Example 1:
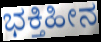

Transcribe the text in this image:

ಭಕ್ತಿಹೀನ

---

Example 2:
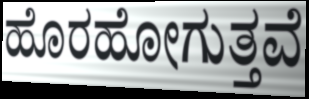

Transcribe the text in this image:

ಹೊರಹೋಗುತ್ತವೆ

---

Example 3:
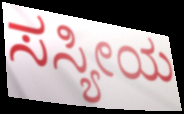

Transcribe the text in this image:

ಸಸ್ಯೀಯ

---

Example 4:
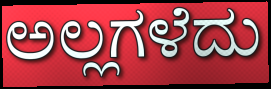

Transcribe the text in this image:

ಅಲ್ಲಗಳೆದು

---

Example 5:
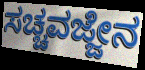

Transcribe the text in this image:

ಸಚ್ಚವಜ್ಜೇನ